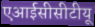
एआईसीसीटीयू